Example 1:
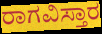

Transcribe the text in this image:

ರಾಗವಿಸ್ತಾರ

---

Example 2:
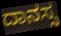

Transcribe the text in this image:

ದಾನಸ್ಸ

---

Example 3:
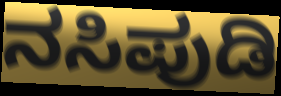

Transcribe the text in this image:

ನಸಿಪುಡಿ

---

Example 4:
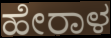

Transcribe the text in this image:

ಹೇರಾಳ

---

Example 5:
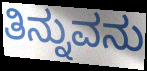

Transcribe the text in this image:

ತಿನ್ನುವನು